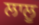
ਲਾਲੂ